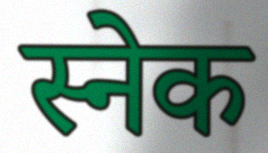
स्नेक